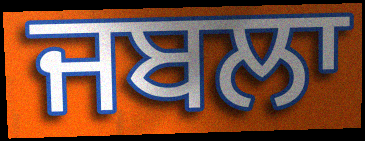
ਜਬਲਾ